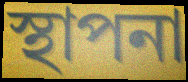
স্থাপনা